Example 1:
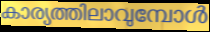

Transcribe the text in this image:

കാര്യത്തിലാവുമ്പോൾ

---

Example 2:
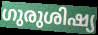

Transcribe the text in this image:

ഗുരുശിഷ്യ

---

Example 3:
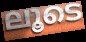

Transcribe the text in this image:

ലൂടെ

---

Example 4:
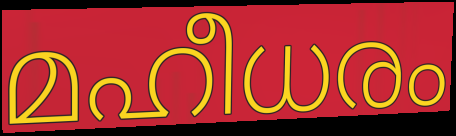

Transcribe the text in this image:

മഹീധരം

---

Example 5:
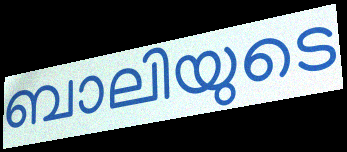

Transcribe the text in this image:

ബാലിയുടെ